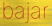
bajar